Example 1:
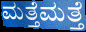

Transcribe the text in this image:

ಮತ್ತೆಮತ್ತೆ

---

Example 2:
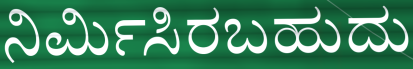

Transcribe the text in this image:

ನಿರ್ಮಿಸಿರಬಹುದು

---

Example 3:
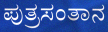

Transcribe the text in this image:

ಪುತ್ರಸಂತಾನ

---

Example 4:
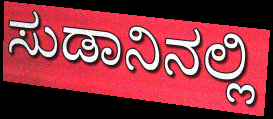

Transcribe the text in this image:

ಸುಡಾನಿನಲ್ಲಿ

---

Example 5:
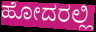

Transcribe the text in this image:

ಹೋದರಲ್ಲಿ